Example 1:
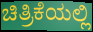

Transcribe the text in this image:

ಚಿತ್ರಿಕೆಯಲ್ಲಿ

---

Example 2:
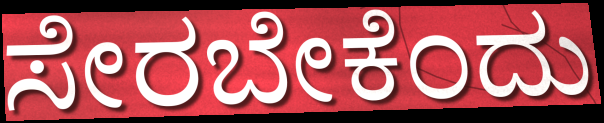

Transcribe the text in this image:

ಸೇರಬೇಕೆಂದು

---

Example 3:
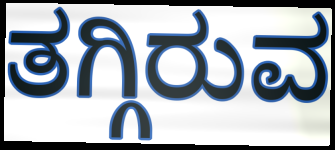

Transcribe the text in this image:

ತಗ್ಗಿರುವ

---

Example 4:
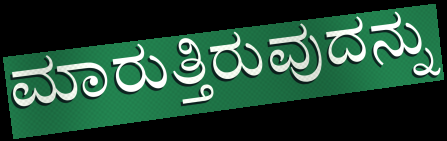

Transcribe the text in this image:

ಮಾರುತ್ತಿರುವುದನ್ನು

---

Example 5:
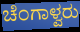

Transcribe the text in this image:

ಚೆಂಗಾಳ್ವರು